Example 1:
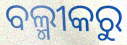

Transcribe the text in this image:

ବଲ୍ମୀକରୁ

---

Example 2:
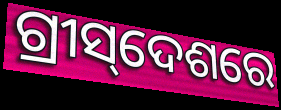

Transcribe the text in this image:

ଗ୍ରୀସ୍‌ଦେଶରେ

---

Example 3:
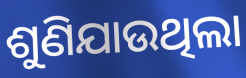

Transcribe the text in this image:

ଶୁଣିଯାଉଥିଲା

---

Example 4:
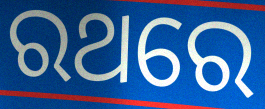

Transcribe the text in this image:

ରଥରେ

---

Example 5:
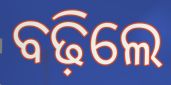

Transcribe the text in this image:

ବଢ଼ିଲେ